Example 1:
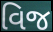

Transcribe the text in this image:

વિજ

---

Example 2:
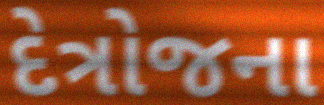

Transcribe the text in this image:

દેત્રોજના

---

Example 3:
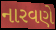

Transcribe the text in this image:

નારવણે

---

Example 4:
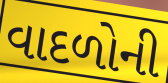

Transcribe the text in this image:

વાદળોની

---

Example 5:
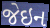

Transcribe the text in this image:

જેઇન